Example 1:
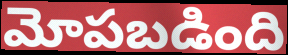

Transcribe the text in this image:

మోపబడింది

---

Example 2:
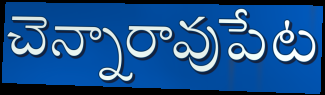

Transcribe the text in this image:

చెన్నారావుపేట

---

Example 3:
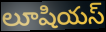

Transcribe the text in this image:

లూషియస్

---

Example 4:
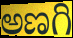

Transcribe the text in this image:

అణగి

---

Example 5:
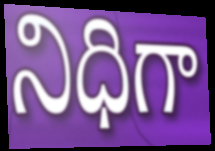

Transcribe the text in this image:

నిధిగా